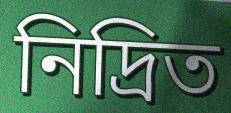
নিদ্রিত